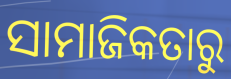
ସାମାଜିକତାରୁ